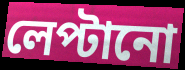
লেপ্টানো